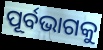
ପୂର୍ବଭାଗକୁ